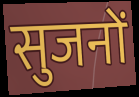
सुजनों